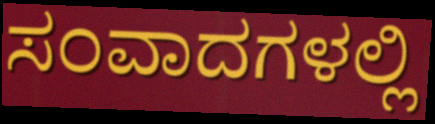
ಸಂವಾದಗಳಲ್ಲಿ